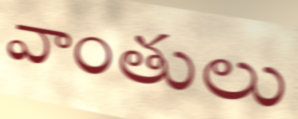
వాంతులు